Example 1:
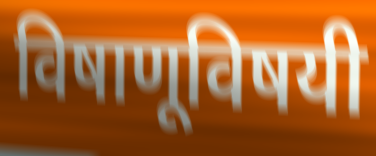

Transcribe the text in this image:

विषाणूविषयी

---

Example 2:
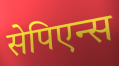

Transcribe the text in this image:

सेपिएन्स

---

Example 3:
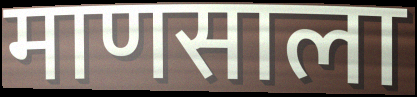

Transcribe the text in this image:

माणसाला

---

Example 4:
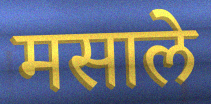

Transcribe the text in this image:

मसाले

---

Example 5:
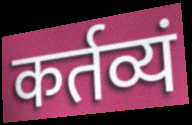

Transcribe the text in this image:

कर्तव्यं